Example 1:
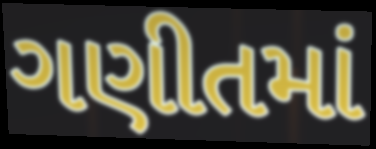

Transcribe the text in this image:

ગણીતમાં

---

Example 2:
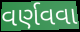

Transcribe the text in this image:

વર્ણવવા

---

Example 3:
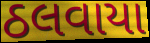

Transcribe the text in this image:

ઠલવાયા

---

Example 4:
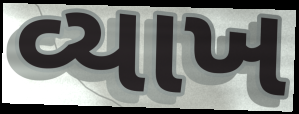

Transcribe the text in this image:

વ્યાખ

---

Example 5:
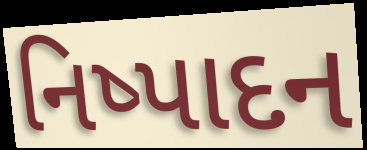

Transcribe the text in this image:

નિષ્પાદન